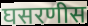
घसरणीस